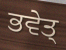
ਭਵੇਤ੍